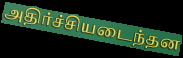
அதிர்ச்சியடைந்தன